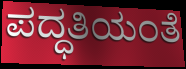
ಪದ್ಧತಿಯಂತೆ